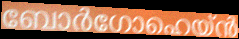
ബോർഗോഹെയ്ൻ